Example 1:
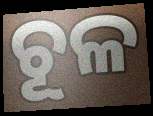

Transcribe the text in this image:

ଚୂଳ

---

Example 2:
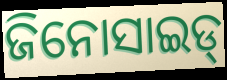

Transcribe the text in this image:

ଜିନୋସାଇଡ୍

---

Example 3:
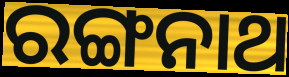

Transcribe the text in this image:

ରଙ୍ଗନାଥ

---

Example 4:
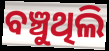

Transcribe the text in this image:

ବଞ୍ଚୁଥିଲି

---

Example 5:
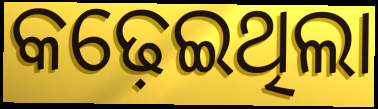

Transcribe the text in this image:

କଢ଼େଇଥିଲା